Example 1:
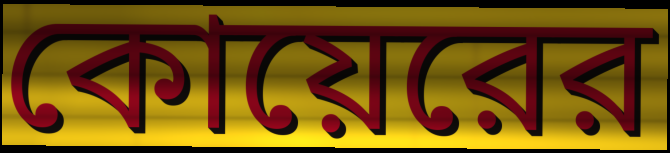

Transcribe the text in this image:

কোয়েরের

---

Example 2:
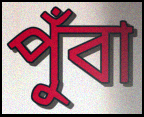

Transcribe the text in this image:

পুঁবা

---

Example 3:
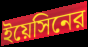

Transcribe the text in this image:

ইয়েসিনের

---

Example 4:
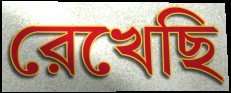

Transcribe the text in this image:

রেখেছি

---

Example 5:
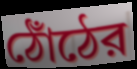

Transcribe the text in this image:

ঠোঁঠের